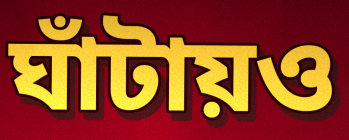
ঘাঁটায়ও